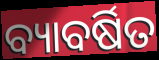
ବ୍ୟାବର୍ଷିତ